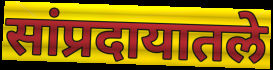
सांप्रदायातले